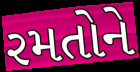
રમતોને